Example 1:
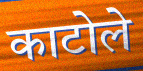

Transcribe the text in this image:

काटोले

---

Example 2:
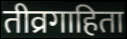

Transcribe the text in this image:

तीव्रगाहिता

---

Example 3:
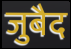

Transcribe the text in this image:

जुबैद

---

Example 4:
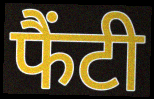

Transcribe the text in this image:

फैंटी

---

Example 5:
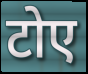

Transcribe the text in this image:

टोए